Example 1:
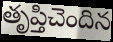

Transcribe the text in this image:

తృప్తిచెందిన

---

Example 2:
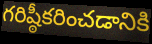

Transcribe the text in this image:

గరిష్ఠీకరించడానికి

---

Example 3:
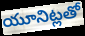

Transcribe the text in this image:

యూనిట్లతో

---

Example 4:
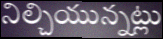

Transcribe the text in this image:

నిల్చియున్నట్లు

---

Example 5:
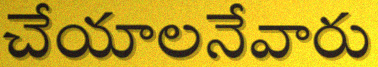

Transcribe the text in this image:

చేయాలనేవారు